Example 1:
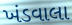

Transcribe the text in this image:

ખંડવાલા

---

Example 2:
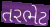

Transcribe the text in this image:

તરભેટ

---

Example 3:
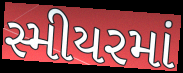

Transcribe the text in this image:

સ્મીયરમાં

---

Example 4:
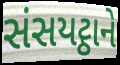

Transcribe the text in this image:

સંસયટ્ઠાને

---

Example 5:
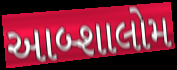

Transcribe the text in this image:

આબ્શાલોમ